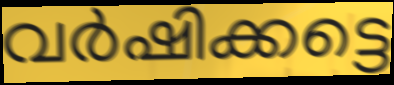
വർഷിക്കട്ടെ